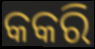
କକରି